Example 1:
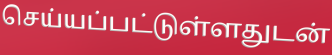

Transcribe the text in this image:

செய்யப்பட்டுள்ளதுடன்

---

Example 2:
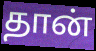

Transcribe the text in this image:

தான்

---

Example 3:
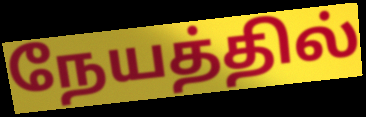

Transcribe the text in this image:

நேயத்தில்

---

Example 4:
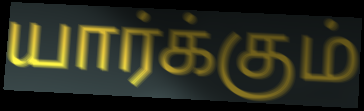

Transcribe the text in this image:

யார்க்கும்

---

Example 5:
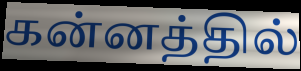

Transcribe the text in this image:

கன்னத்தில்